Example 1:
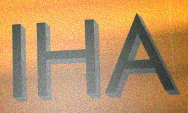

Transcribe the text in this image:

IHA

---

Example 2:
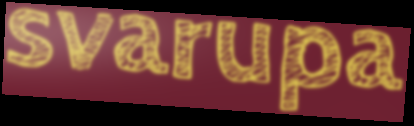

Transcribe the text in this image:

svarupa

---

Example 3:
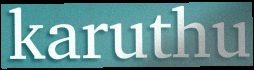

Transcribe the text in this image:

karuthu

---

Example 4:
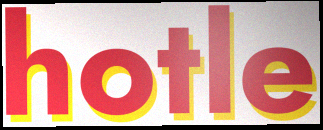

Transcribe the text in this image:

hotle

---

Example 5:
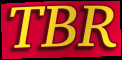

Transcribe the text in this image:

TBR